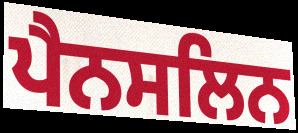
ਪੈਨਸਲਿਨ